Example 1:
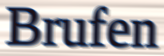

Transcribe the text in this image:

Brufen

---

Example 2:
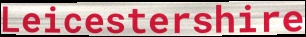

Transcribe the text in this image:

Leicestershire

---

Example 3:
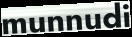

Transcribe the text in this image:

munnudi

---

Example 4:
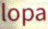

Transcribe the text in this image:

lopa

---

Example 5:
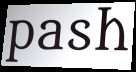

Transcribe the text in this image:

pash